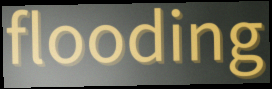
flooding